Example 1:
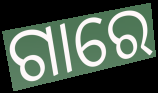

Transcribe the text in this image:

ଗାରେ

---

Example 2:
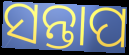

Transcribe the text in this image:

ସନ୍ତାପ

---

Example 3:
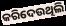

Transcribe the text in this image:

କରିଦେଉଥିଲି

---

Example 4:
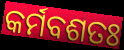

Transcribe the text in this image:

କର୍ମବଶତଃ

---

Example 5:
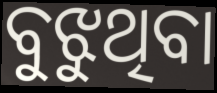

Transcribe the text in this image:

ବୁଝୁଥିବା